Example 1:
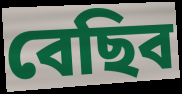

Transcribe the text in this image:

বেছিব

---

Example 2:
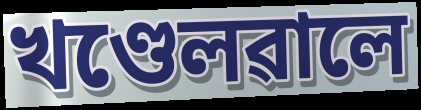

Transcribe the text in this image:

খণ্ডেলৱালে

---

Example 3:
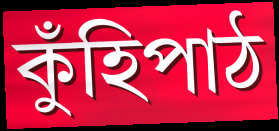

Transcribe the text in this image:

কুঁহিপাঠ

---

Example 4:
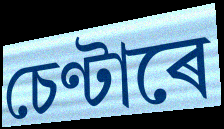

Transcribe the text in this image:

চেণ্টাৰে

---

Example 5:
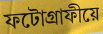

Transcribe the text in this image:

ফটোগ্ৰাফীয়ে